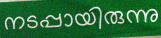
നടപ്പായിരുന്നു